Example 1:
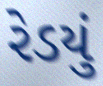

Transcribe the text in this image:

રેડયું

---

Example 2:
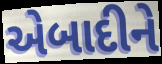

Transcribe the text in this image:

એબાદીને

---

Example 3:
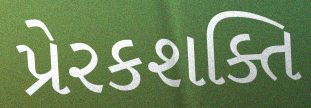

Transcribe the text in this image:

પ્રેરકશક્તિ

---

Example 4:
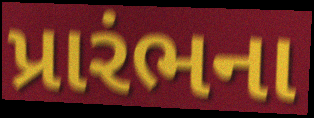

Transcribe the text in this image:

પ્રારંભના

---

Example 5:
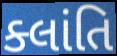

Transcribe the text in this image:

ક્લાંતિ